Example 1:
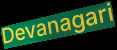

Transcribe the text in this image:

Devanagari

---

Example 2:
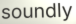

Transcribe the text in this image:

soundly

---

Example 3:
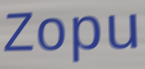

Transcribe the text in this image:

Zopu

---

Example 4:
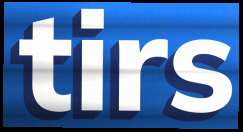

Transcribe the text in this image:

tirs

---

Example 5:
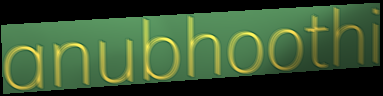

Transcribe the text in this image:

anubhoothi